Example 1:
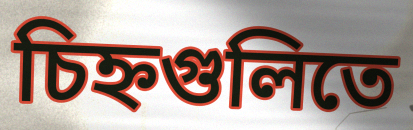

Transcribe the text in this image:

চিহ্নগুলিতে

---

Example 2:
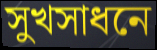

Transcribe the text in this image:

সুখসাধনে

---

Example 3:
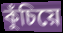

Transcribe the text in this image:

কুঁচিয়ে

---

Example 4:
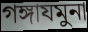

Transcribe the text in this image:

গঙ্গাযমুনা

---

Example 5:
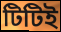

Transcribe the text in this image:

টিটিই